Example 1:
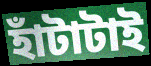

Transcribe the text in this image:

হাঁটাটাই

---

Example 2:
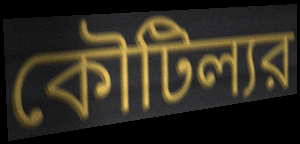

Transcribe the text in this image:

কৌটিল্যর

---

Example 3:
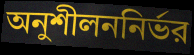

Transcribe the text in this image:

অনুশীলননির্ভর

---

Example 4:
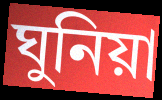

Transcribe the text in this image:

ঘুনিয়া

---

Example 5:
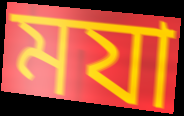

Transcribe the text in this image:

মযা